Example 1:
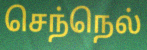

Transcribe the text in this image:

செந்நெல்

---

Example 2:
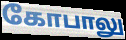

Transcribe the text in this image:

கோபாலு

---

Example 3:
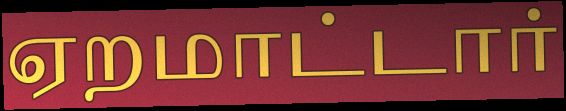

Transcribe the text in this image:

ஏறமாட்டார்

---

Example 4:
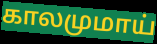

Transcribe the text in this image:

காலமுமாய்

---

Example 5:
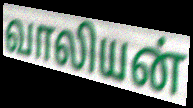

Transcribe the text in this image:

வாலியன்